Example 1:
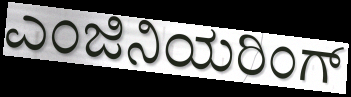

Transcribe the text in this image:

ಎಂಜಿನಿಯರಿಂಗ್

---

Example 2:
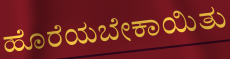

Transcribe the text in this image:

ಹೊರೆಯಬೇಕಾಯಿತು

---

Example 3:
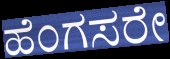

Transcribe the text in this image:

ಹೆಂಗಸರೇ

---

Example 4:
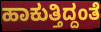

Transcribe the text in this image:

ಹಾಕುತ್ತಿದ್ದಂತೆ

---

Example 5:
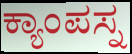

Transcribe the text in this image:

ಕ್ಯಾಂಪಸ್ನ